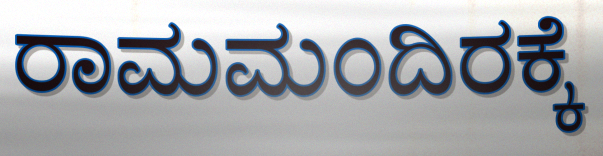
ರಾಮಮಂದಿರಕ್ಕೆ